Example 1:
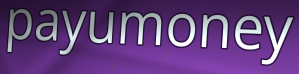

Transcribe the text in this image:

payumoney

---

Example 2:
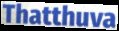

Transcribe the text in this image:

Thatthuva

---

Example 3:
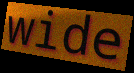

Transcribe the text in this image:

wide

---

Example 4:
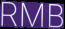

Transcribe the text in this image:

RMB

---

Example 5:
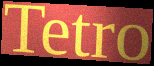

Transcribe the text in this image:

Tetro